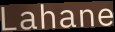
Lahane